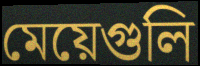
মেয়েগুলি